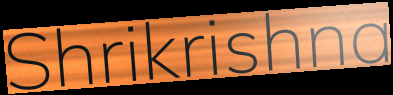
Shrikrishna